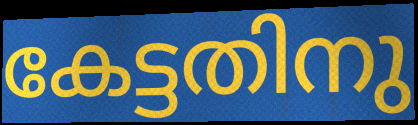
കേട്ടതിനു